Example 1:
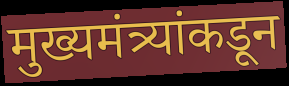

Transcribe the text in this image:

मुख्यमंत्र्यांकडून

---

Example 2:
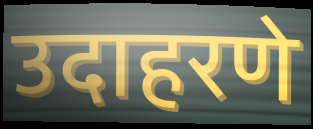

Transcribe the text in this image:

उदाहरणे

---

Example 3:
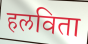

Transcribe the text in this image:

हलविता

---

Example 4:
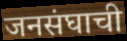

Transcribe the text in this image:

जनसंघाची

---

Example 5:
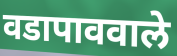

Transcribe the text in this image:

वडापाववाले